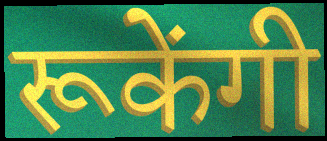
रूकेंगी